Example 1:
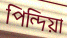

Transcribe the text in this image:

পিন্দিয়া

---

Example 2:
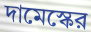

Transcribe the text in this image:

দামেস্কের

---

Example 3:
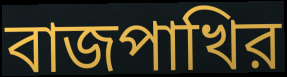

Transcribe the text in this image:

বাজপাখির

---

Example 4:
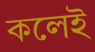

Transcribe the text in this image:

কলেই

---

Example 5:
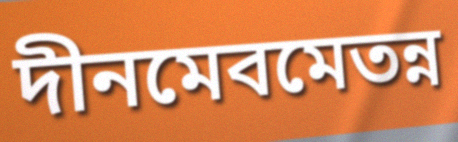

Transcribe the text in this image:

দীনমেবমেতন্ন